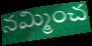
నమ్మించ